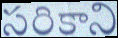
సరికాని